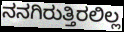
ನನಗಿರುತ್ತಿರಲಿಲ್ಲ